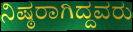
ನಿಷ್ಠರಾಗಿದ್ದವರು